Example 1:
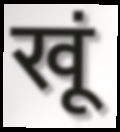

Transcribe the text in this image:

खूं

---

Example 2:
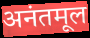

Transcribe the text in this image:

अनंतमूल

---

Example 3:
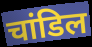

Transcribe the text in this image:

चांडिल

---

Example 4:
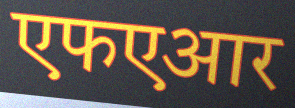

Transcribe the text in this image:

एफएआर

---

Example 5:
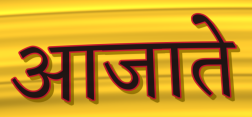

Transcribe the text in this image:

आजाते